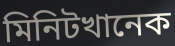
মিনিটখানেক